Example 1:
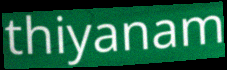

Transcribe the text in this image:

thiyanam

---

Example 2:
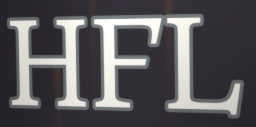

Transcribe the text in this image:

HFL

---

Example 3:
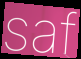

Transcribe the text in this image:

saf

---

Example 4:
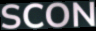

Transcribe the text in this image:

SCON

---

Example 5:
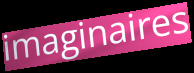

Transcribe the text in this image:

imaginaires